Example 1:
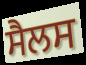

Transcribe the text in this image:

ਸੈਲਸ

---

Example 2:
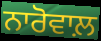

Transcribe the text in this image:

ਨਾਰੋਵਾਲ਼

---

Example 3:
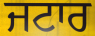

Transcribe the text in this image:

ਜਟਾਰ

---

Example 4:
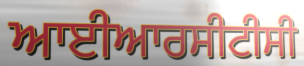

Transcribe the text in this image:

ਆਈਆਰਸੀਟੀਸੀ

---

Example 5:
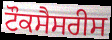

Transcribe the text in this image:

ਟੌਕਸੈਸਰੀਸ